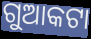
ଗୁଆକଟା